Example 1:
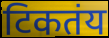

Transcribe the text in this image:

टिकतंय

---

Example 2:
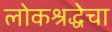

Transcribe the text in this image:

लोकश्रद्धेचा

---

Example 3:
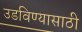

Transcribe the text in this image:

उडविण्यासाठी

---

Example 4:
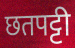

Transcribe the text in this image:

छतपट्टी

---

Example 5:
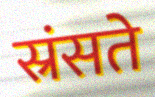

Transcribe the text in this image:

स्रंसते